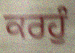
ਕਰਹੁੰ